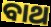
ବାଥ